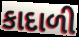
કાદાળી